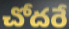
చోదరే